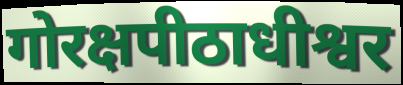
गोरक्षपीठाधीश्वर